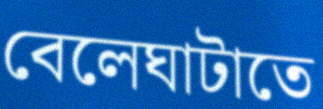
বেলেঘাটাতে